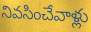
నివసించేవాళ్లు